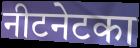
नीटनेटका